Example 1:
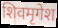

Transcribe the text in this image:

शिवमृगेश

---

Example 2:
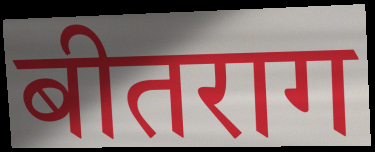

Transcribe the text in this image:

बीतराग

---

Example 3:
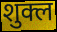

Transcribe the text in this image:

शुक्‍ल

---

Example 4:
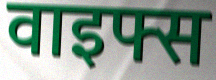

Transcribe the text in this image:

वाइफ्स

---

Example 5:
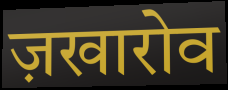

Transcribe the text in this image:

ज़खारोव